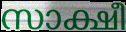
സാക്ഷീ